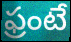
ఫ్రంటే